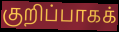
குறிப்பாகக்